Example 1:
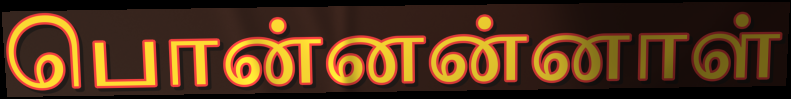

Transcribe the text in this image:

பொன்னன்னாள்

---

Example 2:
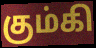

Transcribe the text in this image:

கும்கி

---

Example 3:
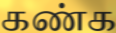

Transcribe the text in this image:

கண்க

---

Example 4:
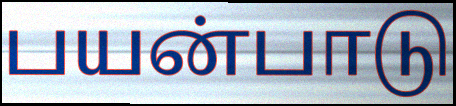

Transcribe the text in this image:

பயன்பாடு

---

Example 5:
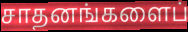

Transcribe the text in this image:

சாதனங்களைப்